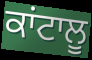
ਕਾਂਟਾਲੂ